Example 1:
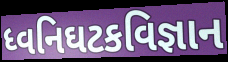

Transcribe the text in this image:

ધ્વનિઘટકવિજ્ઞાન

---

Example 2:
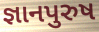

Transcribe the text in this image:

જ્ઞાનપુરુષ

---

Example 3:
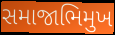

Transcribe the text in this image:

સમાજાભિમુખ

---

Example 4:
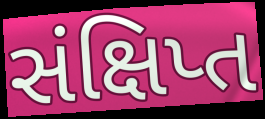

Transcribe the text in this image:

સંક્ષિપ્ત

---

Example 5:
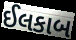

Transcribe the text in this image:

ઈલકાબ